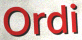
Ordi